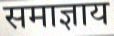
समाज्ञाय